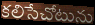
కలిసేచోటును